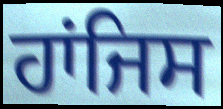
ਹਾਂਜਿਸ